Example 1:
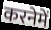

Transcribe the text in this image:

करनेमें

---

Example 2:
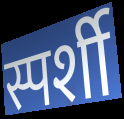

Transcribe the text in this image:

स्पर्शी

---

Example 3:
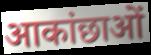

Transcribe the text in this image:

आकांछाओं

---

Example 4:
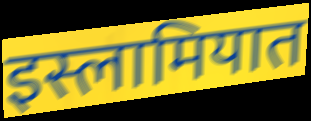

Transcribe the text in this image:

इस्लामियात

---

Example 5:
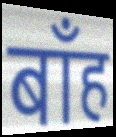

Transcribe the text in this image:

बाँह